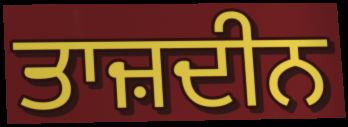
ਤਾਜ਼ਦੀਨ